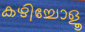
കഴിച്ചോളൂ